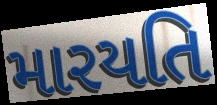
મારયતિ